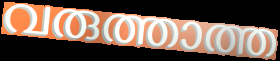
വരുത്താത്ത